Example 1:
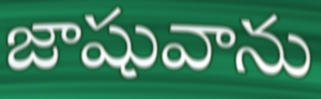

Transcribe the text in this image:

జాషువాను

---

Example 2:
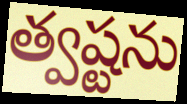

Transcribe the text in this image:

త్వష్టను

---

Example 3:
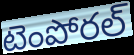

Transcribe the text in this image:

టెంపోరల్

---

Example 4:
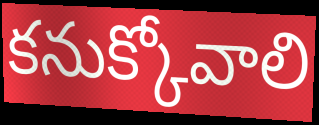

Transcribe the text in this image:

కనుక్కోవాలి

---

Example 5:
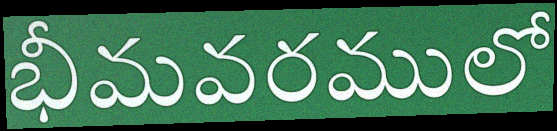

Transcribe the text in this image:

భీమవరములో